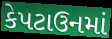
કેપટાઉનમાં